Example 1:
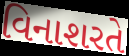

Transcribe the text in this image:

વિનાશરતે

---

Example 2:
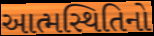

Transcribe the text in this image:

આત્મસ્થિતિનો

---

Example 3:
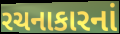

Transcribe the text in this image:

રચનાકારનાં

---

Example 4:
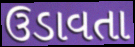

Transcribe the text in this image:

ઉડાવતા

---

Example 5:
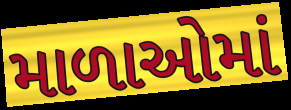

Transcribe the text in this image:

માળાઓમાં